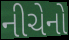
નીચેનો